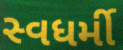
સ્વધર્મી